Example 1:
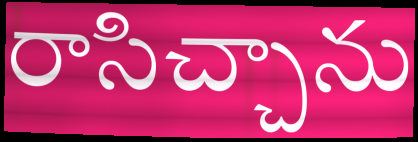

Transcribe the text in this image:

రాసిచ్చాను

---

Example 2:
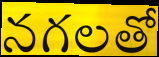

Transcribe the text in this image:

నగలతో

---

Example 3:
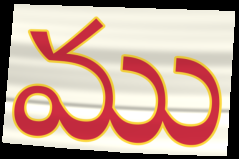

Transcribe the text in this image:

ము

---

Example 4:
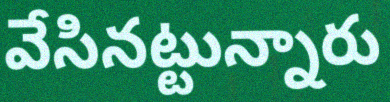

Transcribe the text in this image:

వేసినట్టున్నారు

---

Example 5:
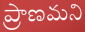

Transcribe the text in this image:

ప్రాణమని